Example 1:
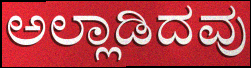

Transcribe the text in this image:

ಅಲ್ಲಾಡಿದವು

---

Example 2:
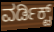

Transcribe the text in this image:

ವರ್ಡಿಕ್ಟ್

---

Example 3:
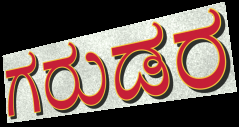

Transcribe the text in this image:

ಗರುಡರ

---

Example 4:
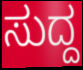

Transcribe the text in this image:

ಸುದ್ದ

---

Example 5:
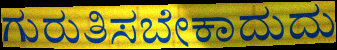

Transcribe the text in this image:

ಗುರುತಿಸಬೇಕಾದುದು